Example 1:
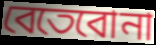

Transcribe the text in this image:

বেতেবোনা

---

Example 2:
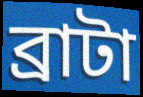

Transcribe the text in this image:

ব্রাটা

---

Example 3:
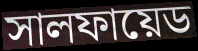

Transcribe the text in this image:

সালফায়েড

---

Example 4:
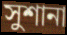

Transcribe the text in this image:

সুশানা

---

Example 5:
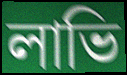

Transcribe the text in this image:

লাভি